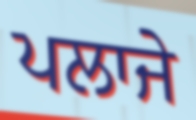
ਪਲਾਜੇ